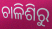
ଚାଳିଶିରୁ